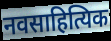
नवसाहित्यिक